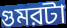
গুমরটা